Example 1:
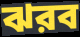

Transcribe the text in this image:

ঝরব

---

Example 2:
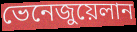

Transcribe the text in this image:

ভেনেজুয়েলান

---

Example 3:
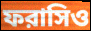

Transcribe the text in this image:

ফরাসিও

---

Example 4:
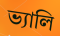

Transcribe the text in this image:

ভ্যালি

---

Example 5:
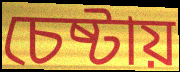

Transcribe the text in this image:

চেষ্টায়